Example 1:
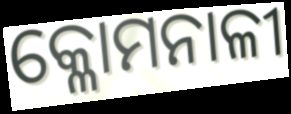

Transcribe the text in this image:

କ୍ଳୋମନାଳୀ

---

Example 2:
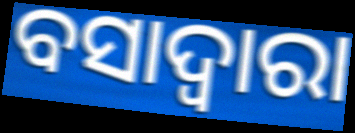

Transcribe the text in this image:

ବସାଦ୍ୱାରା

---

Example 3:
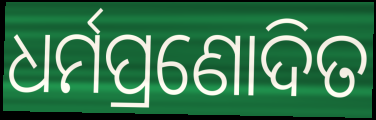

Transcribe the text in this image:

ଧର୍ମପ୍ରଣୋଦିତ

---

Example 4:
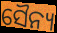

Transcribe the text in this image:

ସୈନ୍ୟ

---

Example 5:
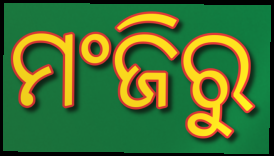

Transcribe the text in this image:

ମଂଜିରୁ